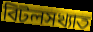
বিটলসখ্যাত